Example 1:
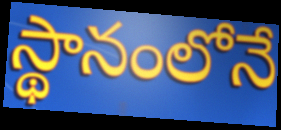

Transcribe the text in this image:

స్థానంలోనే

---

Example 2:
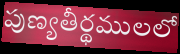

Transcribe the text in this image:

పుణ్యతీర్థములలో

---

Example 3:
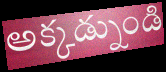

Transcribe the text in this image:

అక్కడ్నుండి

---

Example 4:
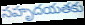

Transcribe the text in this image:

సహృదయతకు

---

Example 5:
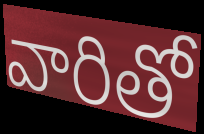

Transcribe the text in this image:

వారితో